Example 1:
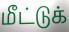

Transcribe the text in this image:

மீட்டுக்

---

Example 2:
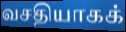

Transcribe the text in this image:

வசதியாகக்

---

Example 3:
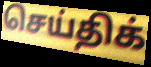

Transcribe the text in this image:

செய்திக்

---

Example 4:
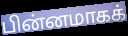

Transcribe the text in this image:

பின்னமாகக்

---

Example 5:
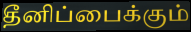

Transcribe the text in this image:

தீனிப்பைக்கும்